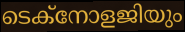
ടെക്നോളജിയും